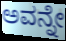
ಅವನ್ನೇ